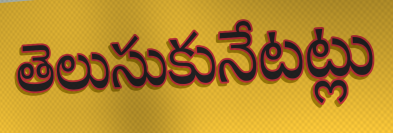
తెలుసుకునేటట్లు